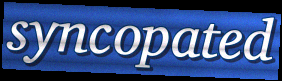
syncopated